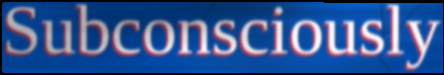
Subconsciously